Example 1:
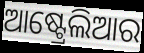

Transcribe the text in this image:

ଆଷ୍ଟ୍ରେଲିଆର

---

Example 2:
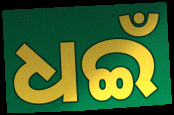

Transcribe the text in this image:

ଧଇଁ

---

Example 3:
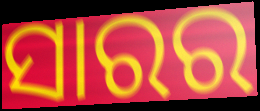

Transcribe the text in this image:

ସାରର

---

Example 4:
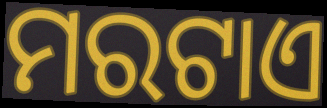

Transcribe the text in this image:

ମରଟାଏ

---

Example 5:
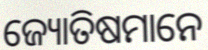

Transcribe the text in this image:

ଜ୍ୟୋତିଷମାନେ